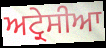
ਅਟ੍ਰੇਸੀਆ